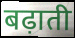
बढ़ाती